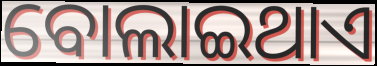
ବୋଲାଇଥାଏ